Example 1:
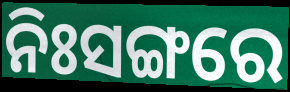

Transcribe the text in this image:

ନିଃସଙ୍ଗରେ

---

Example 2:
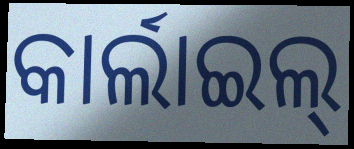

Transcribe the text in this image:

କାର୍ଲାଇଲ୍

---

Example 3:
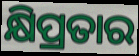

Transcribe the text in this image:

କ୍ଷିପ୍ରତାର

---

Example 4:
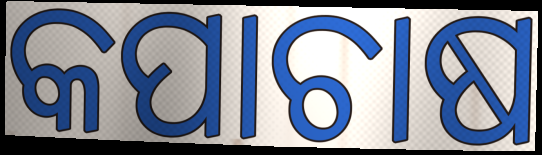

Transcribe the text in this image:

କପାଚାଷ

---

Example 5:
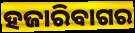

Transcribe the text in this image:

ହଜାରିବାଗର